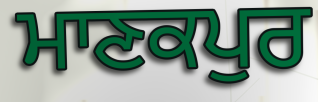
ਮਾਣਕਪੁਰ